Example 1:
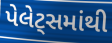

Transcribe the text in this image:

પેલેટ્સમાંથી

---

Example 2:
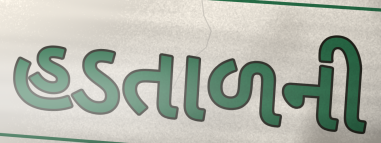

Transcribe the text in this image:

હડતાળની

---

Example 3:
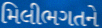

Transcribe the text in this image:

મિલીભગતને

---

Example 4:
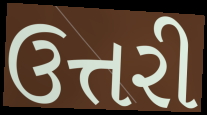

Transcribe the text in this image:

ઉત્તરી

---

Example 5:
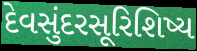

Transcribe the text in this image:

દેવસુંદરસૂરિશિષ્ય